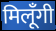
मिलूँगी